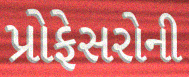
પ્રોફેસરોની